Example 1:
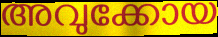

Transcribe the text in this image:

അവുക്കോയ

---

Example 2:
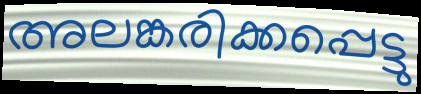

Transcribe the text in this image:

അലങ്കരിക്കപ്പെട്ടു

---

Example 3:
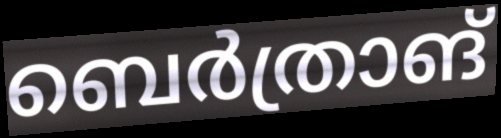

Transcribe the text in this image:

ബെർത്രാങ്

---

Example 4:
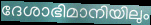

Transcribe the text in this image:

ദേശാഭിമാനിയിലും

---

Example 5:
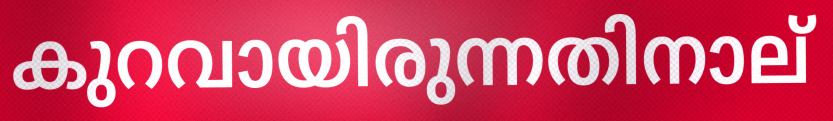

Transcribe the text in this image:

കുറവായിരുന്നതിനാല്